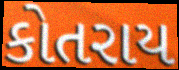
કોતરાય